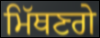
ਮਿੱਥਣਗੇ